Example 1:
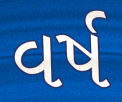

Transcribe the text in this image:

વર્ષ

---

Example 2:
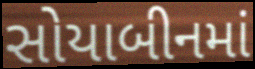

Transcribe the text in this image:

સોયાબીનમાં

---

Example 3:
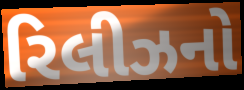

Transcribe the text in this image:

રિલીઝનો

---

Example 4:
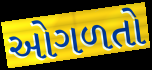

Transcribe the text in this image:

ઓગળતો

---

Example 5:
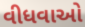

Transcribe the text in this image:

વીધવાઓ